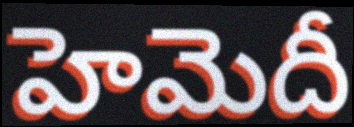
హెమెదీ